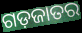
ଗଡ଼ଜାତର